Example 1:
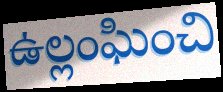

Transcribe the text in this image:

ఉల్లంఘించి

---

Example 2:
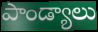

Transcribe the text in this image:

పాండ్యాలు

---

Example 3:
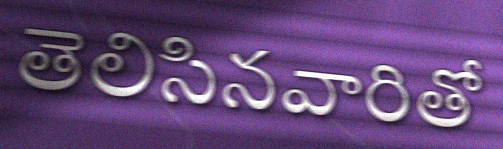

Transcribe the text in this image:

తెలిసినవారితో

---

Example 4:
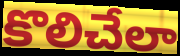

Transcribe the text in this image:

కొలిచేలా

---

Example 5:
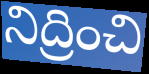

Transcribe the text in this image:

నిద్రించి